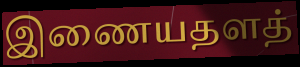
இணையதளத்